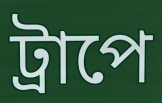
ট্রাপে